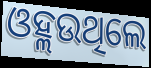
ଓହ୍ଲଉଥିଲେ